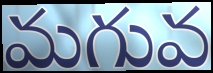
మగువ